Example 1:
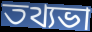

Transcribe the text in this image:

তথ্যভা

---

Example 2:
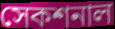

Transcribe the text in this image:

সেকশনাল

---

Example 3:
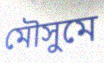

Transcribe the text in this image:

মৌসুমে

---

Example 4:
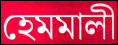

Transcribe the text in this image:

হেমমালী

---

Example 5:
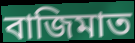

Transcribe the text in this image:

বাজিমাত